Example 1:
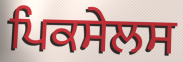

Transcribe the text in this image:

ਪਿਕਸੇਲਸ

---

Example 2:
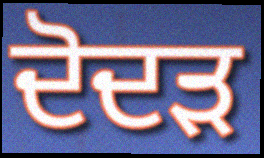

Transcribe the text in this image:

ਦੋਦੜ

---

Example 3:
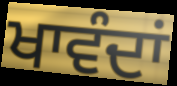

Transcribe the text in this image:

ਖਾਵੰਦਾਂ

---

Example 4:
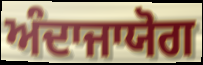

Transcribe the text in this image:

ਅੰਦਾਜਾਯੋਗ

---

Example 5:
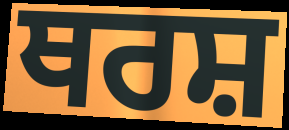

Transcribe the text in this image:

ਥਰਸ਼